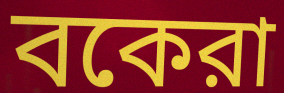
বকেরা